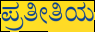
ಪ್ರತೀತಿಯ